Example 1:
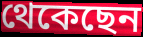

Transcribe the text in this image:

থেকেছেন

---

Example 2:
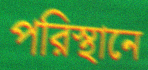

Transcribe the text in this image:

পরিস্থানে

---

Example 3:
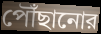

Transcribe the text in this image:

পৌঁছানোর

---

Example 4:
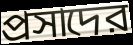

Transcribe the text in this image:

প্রসাদের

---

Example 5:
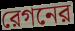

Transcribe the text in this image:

রেগনের